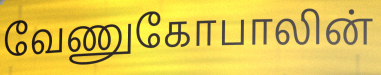
வேணுகோபாலின்